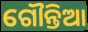
ଗୌନ୍ତିଆ